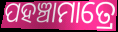
ପହଞ୍ଚାମାତ୍ରେ